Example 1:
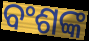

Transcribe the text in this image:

ବଂଶଙ୍କ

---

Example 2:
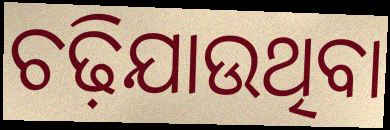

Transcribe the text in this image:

ଚଢ଼ିଯାଉଥିବା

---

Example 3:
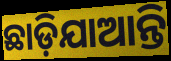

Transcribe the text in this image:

ଛାଡ଼ିଯାଆନ୍ତି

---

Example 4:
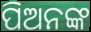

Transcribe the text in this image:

ପିଅନଙ୍କ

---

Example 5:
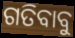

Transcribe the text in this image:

ଗତିବାବୁ